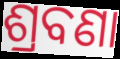
ଶ୍ରବଣା